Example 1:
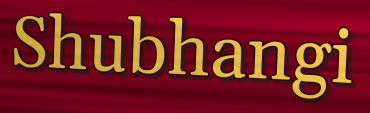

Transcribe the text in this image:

Shubhangi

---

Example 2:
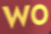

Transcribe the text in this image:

WO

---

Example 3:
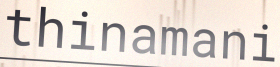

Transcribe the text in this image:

thinamani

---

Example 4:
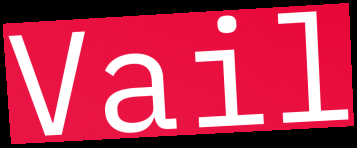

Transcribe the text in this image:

Vail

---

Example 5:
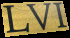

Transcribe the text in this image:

LVI